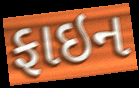
ફાઇન